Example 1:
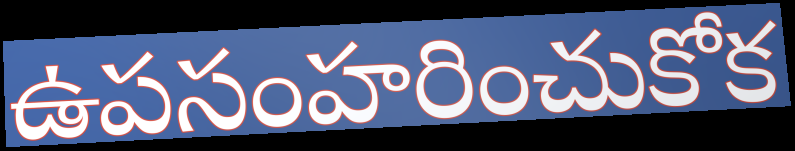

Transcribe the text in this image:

ఉపసంహరించుకోక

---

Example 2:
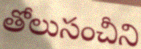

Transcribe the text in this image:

తోలుసంచీని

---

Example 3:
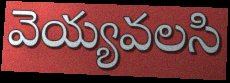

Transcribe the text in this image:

వెయ్యవలసి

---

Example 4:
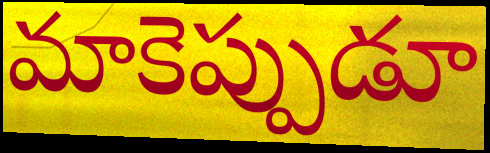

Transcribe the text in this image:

మాకెప్పుడూ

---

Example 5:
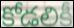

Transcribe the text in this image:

కోడలికీ